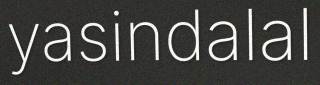
yasindalal